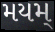
મયમ્